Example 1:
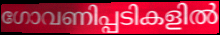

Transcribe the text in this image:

ഗോവണിപ്പടികളിൽ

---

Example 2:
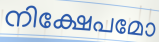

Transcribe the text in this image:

നിക്ഷേപമോ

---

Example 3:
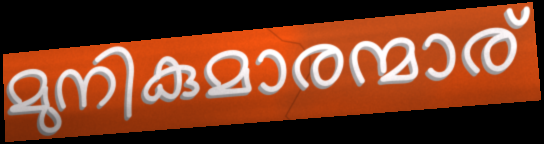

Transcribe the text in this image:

മുനികുമാരന്മാര്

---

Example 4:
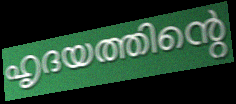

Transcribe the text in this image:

ഹൃദയത്തിന്റെ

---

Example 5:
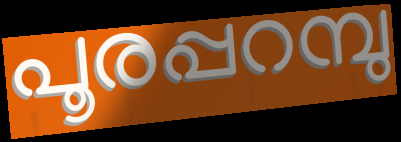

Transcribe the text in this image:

പൂരപ്പറമ്പു